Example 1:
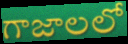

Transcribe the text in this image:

గాజాలలో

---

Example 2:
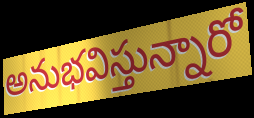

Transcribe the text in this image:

అనుభవిస్తున్నారో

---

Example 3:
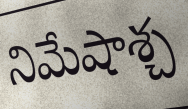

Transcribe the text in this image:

నిమేషాశ్చ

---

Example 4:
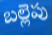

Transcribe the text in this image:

బల్లెపు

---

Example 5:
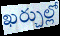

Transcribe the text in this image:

ఖర్చుల్లో